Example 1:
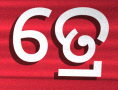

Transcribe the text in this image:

ତ୍ରେ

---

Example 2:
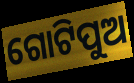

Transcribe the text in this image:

ଗୋଟିପୁଅ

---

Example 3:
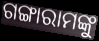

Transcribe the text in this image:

ଗଙ୍ଗାରାମଙ୍କୁ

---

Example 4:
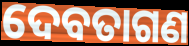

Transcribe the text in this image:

ଦେବତାଗଣ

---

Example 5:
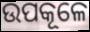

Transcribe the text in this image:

ଉପକୂଳେ